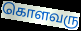
கொளவரு